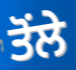
ਤੋਂਲੇ